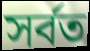
সর্বত